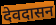
देवदासन